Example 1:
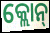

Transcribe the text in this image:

କ୍ଲୋନ୍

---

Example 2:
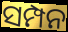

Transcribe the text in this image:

ସମ୍ପନ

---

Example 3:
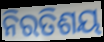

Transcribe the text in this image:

ନିରତିଶୟ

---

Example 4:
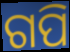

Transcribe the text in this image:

ଗପି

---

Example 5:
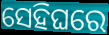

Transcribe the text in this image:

ସେହିଘରେ